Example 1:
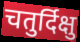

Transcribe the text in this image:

चतुर्दिक्षु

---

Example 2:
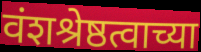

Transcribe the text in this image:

वंशश्रेष्ठत्वाच्या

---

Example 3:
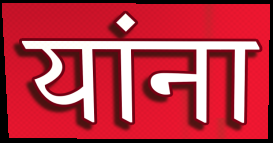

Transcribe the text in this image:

यांना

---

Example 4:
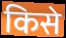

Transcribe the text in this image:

किसे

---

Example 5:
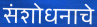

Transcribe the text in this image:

संशोधनाचे